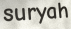
suryah